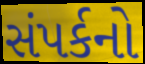
સંપર્કનો